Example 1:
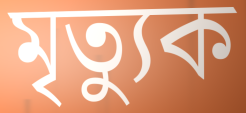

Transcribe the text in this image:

মৃত্যুক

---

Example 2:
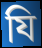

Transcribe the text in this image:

যি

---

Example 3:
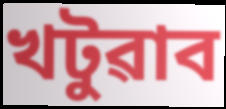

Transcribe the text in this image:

খটুৱাব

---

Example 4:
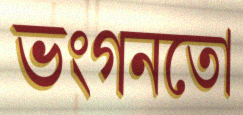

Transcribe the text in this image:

ভংগনতো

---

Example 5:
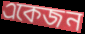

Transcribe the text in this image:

একেজন